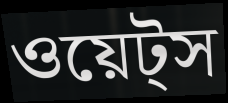
ওয়েট্স